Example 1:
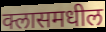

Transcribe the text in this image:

क्लासमधील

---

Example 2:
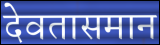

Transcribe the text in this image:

देवतासमान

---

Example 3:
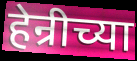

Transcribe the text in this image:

हेन्रीच्या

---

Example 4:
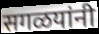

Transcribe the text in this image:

सगळयांनी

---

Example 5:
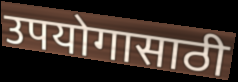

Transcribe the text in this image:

उपयोगासाठी